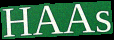
HAAs